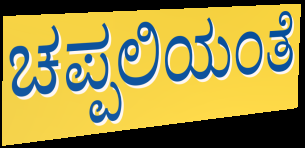
ಚಪ್ಪಲಿಯಂತೆ